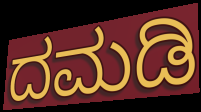
ದಮಡಿ